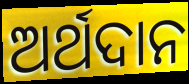
ଅର୍ଥଦାନ